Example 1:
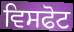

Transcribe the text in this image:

ਵਿਸਫੋਟ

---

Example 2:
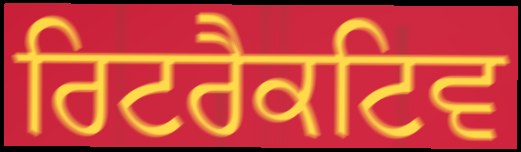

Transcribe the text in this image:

ਰਿਟਰੈਕਟਿਵ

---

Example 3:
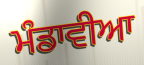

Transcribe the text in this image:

ਮੰਡਾਵੀਆ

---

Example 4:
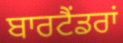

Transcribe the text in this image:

ਬਾਰਟੈਂਡਰਾਂ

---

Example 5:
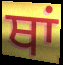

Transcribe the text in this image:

ਥਾਂ